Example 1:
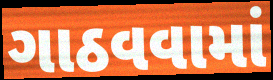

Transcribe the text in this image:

ગાઠવવામાં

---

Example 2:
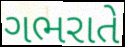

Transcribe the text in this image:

ગભરાતે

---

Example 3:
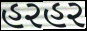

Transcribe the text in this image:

હરહર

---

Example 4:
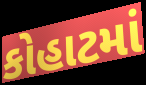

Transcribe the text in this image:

કોહાટમાં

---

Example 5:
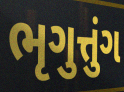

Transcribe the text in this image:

ભૃગુત્તુંગ